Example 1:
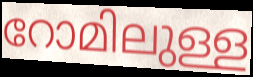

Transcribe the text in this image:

റോമിലുള്ള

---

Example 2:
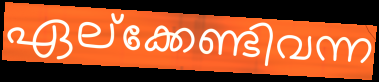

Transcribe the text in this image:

ഏല്ക്കേണ്ടിവന്ന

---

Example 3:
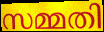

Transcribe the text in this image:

സമ്മതി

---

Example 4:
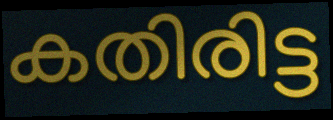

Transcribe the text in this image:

കതിരിട്ട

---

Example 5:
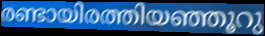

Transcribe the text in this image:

രണ്ടായിരത്തിയഞ്ഞൂറു